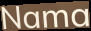
Nama